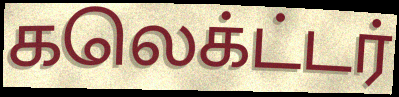
கலெக்ட்டர்